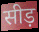
सीड़